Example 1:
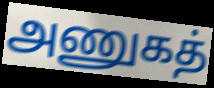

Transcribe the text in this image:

அணுகத்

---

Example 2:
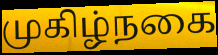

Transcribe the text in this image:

முகிழ்நகை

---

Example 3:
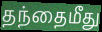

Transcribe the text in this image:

தந்தைமீது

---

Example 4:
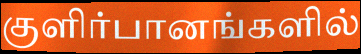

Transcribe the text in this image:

குளிர்பானங்களில்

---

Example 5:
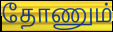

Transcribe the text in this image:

தோணும்